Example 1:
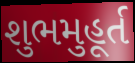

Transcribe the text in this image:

શુભમુહૂર્ત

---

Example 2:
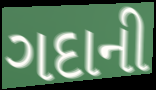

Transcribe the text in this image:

ગદાની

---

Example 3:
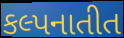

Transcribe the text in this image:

કલ્પનાતીત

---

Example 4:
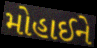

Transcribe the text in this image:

મોહાઈને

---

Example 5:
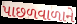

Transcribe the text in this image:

પાછળવાળાને